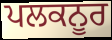
ਪਲਕਨੂਰ